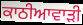
ਕਾਠੀਆਵਾੜੀ